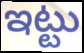
ఇట్టు